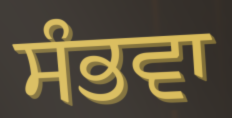
ਸੰਭਵਾ